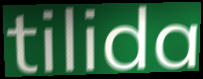
tilida